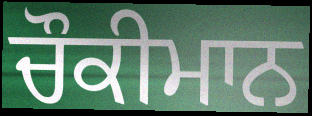
ਚੌਕੀਮਾਨ